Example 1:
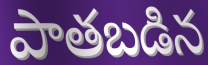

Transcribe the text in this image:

పాతబడిన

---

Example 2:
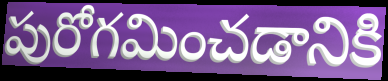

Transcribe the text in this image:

పురోగమించడానికి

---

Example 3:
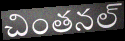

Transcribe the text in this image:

చింతనల్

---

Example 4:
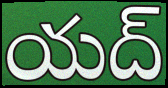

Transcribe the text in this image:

యద్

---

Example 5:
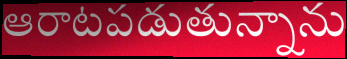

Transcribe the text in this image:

ఆరాటపడుతున్నాను